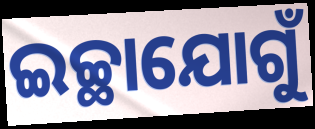
ଇଚ୍ଛାଯୋଗୁଁ